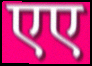
एए